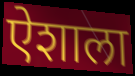
ऐशाला